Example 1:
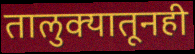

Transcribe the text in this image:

तालुक्यातूनही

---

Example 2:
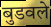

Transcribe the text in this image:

बुडवले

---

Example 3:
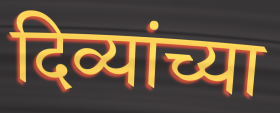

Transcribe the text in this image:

दिव्यांच्या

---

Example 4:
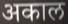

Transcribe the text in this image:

अकाल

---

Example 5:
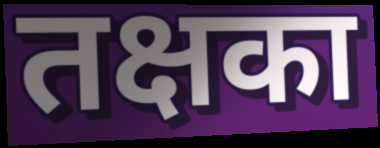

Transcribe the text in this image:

तक्षका